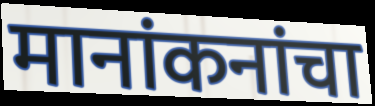
मानांकनांचा